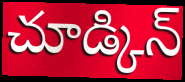
చూడ్కిన్